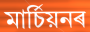
মাৰ্চিয়নৰ